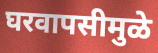
घरवापसीमुळे